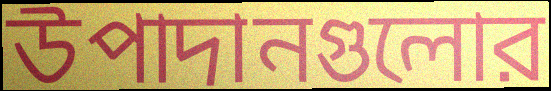
উপাদানগুলোর